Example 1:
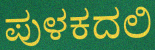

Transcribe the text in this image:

ಪುಳಕದಲಿ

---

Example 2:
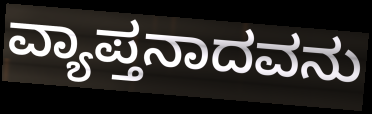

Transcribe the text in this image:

ವ್ಯಾಪ್ತನಾದವನು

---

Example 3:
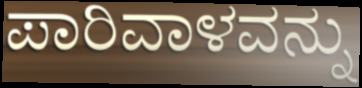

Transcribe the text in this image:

ಪಾರಿವಾಳವನ್ನು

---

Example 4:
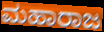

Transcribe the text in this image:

ಮಹಾರಾಜ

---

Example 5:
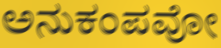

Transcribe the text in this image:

ಅನುಕಂಪವೋ